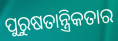
ପୁରୁଷତାନ୍ତ୍ରିକତାର